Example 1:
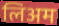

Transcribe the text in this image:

लिअम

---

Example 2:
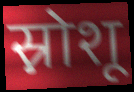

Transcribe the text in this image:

स्नोशू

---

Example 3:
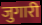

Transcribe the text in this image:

जुगारी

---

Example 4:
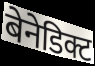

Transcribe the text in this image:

बेनेडिक्ट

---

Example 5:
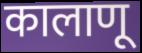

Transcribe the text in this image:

कालाणू